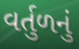
વર્તુળનું